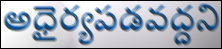
అధైర్యపడవద్దని